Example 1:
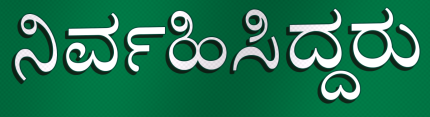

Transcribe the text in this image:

ನಿರ್ವಹಿಸಿದ್ದರು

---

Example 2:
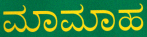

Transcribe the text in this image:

ಮಾಮಾಹ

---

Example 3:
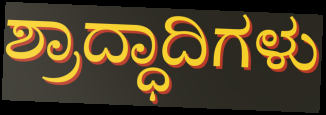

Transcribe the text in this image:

ಶ್ರಾದ್ಧಾದಿಗಳು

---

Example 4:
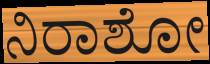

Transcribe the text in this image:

ನಿರಾಶೋ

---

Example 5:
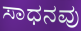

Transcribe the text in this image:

ಸಾಧನವು